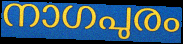
നാഗപുരം